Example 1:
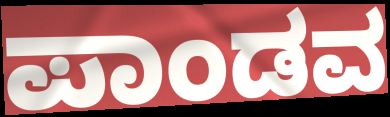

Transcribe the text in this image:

ಪಾಂಡವ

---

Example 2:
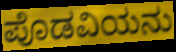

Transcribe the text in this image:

ಪೊಡವಿಯನು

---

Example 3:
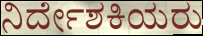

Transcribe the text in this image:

ನಿರ್ದೇಶಕಿಯರು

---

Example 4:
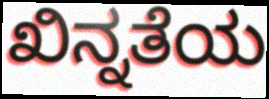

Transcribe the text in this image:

ಖಿನ್ನತೆಯ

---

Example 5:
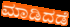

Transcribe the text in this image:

ಮಾಡಿದಡೆ